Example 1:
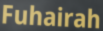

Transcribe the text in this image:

Fuhairah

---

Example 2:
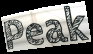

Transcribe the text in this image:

Peak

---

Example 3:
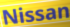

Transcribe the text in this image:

Nissan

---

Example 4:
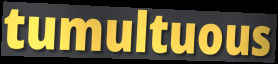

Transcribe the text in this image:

tumultuous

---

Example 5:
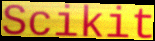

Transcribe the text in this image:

Scikit